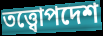
তত্ত্বোপদেশ